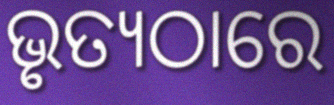
ଭୃତ୍ୟଠାରେ